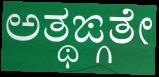
ಅತ್ಥಙ್ಗತೇ